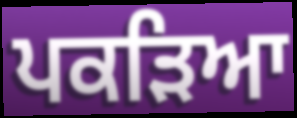
ਪਕੜਿਆ